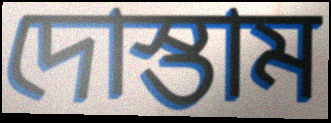
দোস্তাম